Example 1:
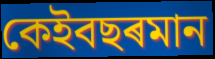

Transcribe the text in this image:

কেইবছৰমান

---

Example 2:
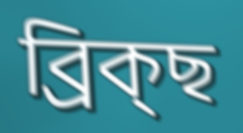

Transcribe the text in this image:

ব্ৰিক্‌ছ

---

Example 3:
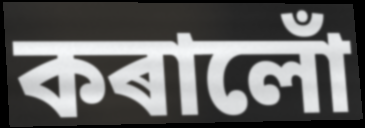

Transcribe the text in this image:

কৰালোঁ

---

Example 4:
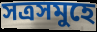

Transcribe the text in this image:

সত্ৰসমুহে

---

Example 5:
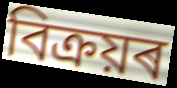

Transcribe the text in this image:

বিক্ৰয়ৰ